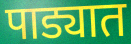
पाड्यात